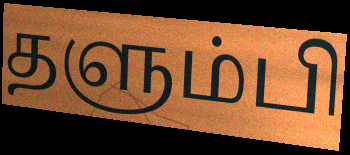
தளும்பி